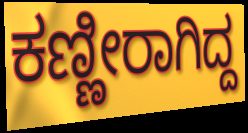
ಕಣ್ಣೀರಾಗಿದ್ದ